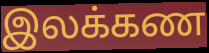
இலக்கண